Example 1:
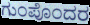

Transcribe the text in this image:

ಗುಂಪೊಂದರ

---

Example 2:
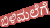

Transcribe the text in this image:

ಬಿಳಿಮಲೆಗೆ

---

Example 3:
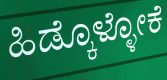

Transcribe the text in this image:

ಹಿಡ್ಕೊಳ್ಳೋಕೆ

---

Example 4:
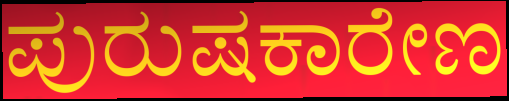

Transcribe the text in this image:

ಪುರುಷಕಾರೇಣ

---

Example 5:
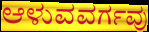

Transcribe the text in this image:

ಆಳುವವರ್ಗವು